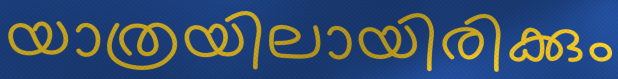
യാത്രയിലായിരിക്കും